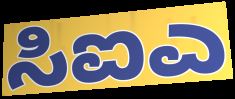
ಸಿಐಎ